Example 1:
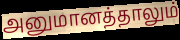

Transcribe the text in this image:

அனுமானத்தாலும்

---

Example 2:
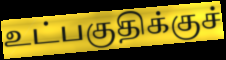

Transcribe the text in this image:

உட்பகுதிக்குச்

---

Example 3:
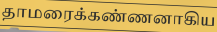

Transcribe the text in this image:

தாமரைக்கண்ணனாகிய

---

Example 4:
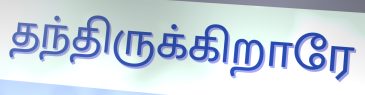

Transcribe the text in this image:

தந்திருக்கிறாரே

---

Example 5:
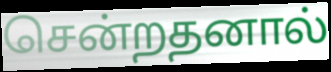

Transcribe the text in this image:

சென்றதனால்